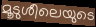
മൂടുശീലെയുടെ